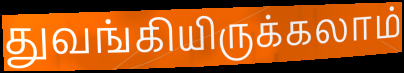
துவங்கியிருக்கலாம்